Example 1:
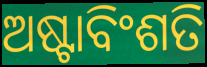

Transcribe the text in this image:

ଅଷ୍ଟାବିଂଶତି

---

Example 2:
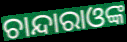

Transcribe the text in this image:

ଚାନ୍ଦାରାଓଙ୍କ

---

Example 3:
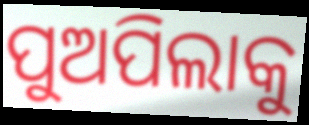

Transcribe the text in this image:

ପୁଅପିଲାକୁ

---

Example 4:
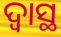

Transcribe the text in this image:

ଦ୍ୱାସ୍ଥ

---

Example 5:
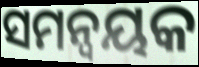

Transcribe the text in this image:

ସମନ୍ୱୟକ